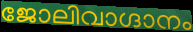
ജോലിവാഗ്ദാനം